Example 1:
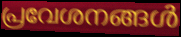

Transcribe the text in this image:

പ്രവേശനങ്ങൾ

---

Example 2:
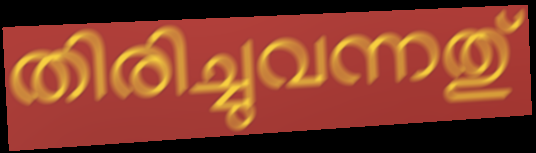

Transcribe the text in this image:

തിരിച്ചുവന്നതു്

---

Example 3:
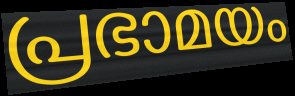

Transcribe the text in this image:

പ്രഭാമയം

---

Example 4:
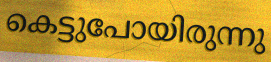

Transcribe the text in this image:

കെട്ടുപോയിരുന്നു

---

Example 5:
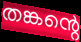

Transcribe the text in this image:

തങ്കന്റെ